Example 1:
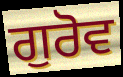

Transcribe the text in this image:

ਗੁਰੋਵ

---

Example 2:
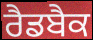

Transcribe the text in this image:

ਰੈਡਬੈਕ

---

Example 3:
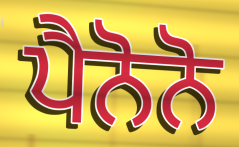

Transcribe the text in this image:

ਪੈਨੋਨੋ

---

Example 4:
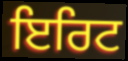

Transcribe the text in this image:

ਇਰਿਟ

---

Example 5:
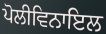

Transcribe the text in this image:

ਪੋਲੀਵਿਨਾਇਲ